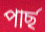
পাৰ্ছ